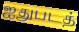
ஐதுபடத்